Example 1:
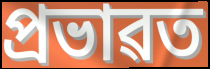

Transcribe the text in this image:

প্ৰভাৱত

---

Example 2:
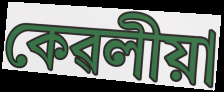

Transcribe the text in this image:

কেৱলীয়া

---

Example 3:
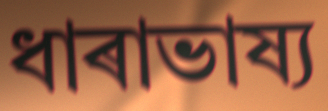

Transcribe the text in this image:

ধাৰাভাষ্য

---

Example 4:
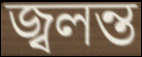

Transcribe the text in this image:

জ্বলন্ত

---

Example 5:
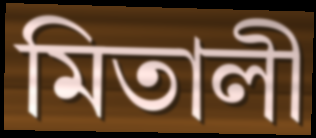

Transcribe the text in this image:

মিতালী